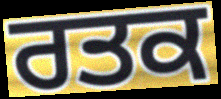
ਰਤਕ